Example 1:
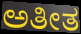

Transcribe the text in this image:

ಅತೀತ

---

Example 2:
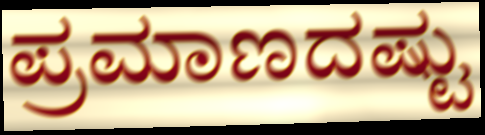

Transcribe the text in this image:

ಪ್ರಮಾಣದಷ್ಟು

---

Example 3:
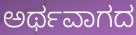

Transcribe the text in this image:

ಅರ್ಥವಾಗದ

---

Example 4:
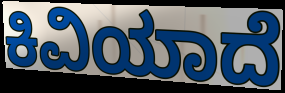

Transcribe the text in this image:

ಕಿವಿಯಾದೆ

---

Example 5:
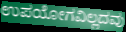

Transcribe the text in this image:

ಉಪಯೋಗವಿಲ್ಲದವು